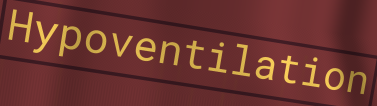
Hypoventilation